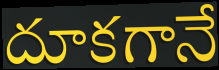
దూకగానే